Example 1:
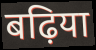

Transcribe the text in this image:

बढ़िया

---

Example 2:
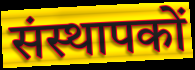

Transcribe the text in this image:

संस्थापकों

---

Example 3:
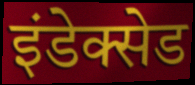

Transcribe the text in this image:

इंडेक्सेड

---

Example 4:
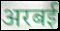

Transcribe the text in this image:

अरबई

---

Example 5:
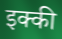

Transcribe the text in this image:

इक्की